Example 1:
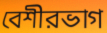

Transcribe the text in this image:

বেশীরভাগ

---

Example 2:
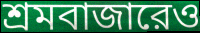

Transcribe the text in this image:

শ্রমবাজারেও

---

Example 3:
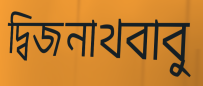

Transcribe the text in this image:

দ্বিজনাথবাবু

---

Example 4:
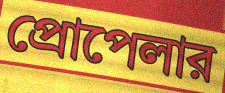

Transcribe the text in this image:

প্রোপেলার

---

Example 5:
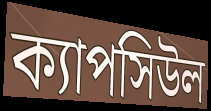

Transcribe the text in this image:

ক্যাপসিউল